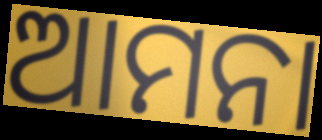
ଆମନା